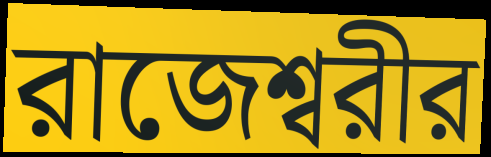
রাজেশ্বরীর